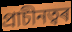
প্ৰাচীনত্বৰ